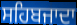
ਸਹਿਬਜਾਦਾ